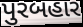
પુરબહાર